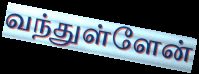
வந்துள்ளேன்